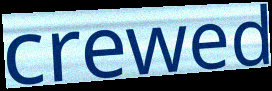
crewed